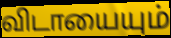
விடாயையும்